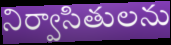
నిర్వాసితులను